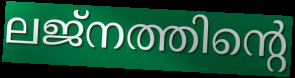
ലജ്നത്തിന്റെ